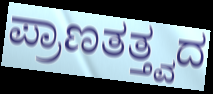
ಪ್ರಾಣತತ್ತ್ವದ